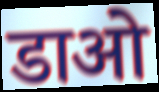
डाओ